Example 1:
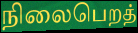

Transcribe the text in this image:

நிலைபெறத்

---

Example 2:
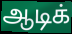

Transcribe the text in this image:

ஆடிக்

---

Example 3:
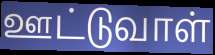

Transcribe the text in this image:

ஊட்டுவாள்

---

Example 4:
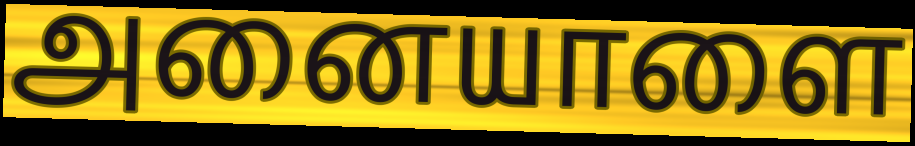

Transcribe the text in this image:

அனையாளை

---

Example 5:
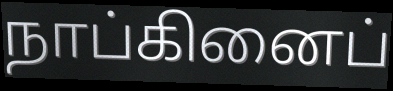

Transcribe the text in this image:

நாப்கினைப்